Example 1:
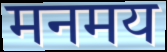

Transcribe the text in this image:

मनमय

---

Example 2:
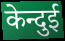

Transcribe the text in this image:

केन्दुई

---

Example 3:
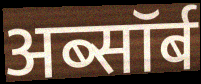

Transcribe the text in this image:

अब्सॉर्ब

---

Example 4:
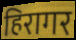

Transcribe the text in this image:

हिरागर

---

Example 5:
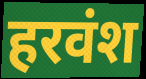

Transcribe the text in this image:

हरवंश